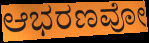
ಆಭರಣವೋ